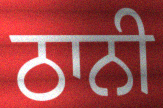
ਠਾਨੀ